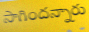
సాగిందన్నారు